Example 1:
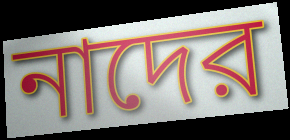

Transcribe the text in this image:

নাদের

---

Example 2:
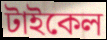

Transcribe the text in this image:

টাইকেল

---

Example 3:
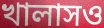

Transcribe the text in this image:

খালাসও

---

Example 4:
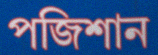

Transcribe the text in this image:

পজিশান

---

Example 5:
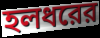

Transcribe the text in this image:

হলধরের